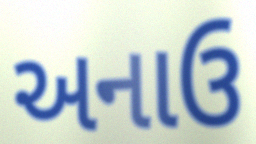
અનાઉ